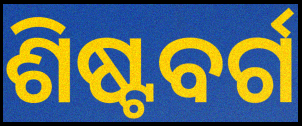
ଶିଷ୍ଟବର୍ଗ